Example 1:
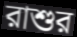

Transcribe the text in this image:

রাশুর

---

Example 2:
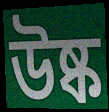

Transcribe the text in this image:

উষ্ক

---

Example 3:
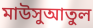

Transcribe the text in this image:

মাউসুআতুল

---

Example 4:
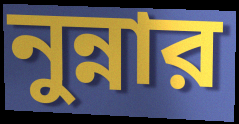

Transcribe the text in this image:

নুন্নার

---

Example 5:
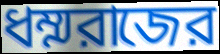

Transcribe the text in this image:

ধম্মরাজের